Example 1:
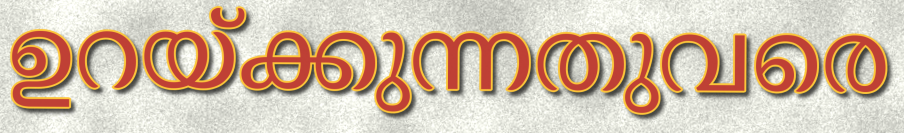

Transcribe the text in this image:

ഉറയ്ക്കുന്നതുവരെ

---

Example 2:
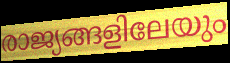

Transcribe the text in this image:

രാജ്യങ്ങളിലേയും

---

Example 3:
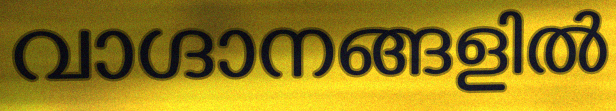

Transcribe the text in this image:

വാഗ്ദാനങ്ങളിൽ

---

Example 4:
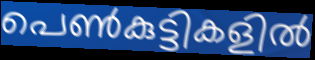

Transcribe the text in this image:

പെൺകുട്ടികളിൽ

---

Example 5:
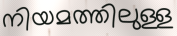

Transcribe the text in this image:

നിയമത്തിലുള്ള